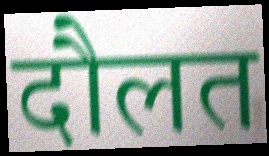
दौलत